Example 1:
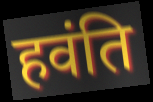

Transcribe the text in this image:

हवंति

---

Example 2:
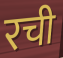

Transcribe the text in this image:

रची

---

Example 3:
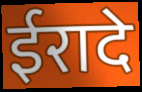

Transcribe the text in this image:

ईरादे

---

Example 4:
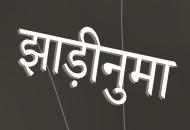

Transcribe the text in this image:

झाड़ीनुमा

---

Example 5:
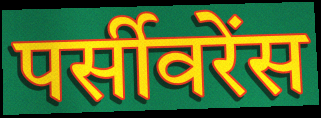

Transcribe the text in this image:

पर्सीवरेंस